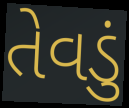
તેવડું